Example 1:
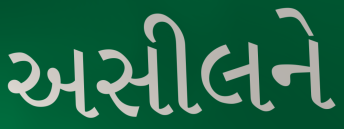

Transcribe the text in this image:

અસીલને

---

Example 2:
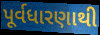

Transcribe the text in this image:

પૂર્વધારણાથી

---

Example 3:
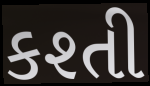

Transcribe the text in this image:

કશ્તી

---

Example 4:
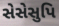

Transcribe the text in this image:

સેસેસુપિ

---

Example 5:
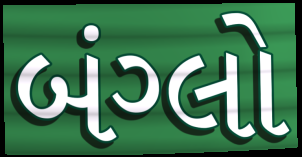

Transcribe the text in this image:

બંગ્લો